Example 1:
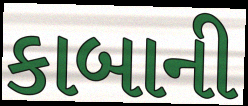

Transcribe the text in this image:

કાબાની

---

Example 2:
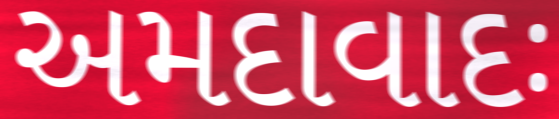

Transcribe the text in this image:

અમદાવાદઃ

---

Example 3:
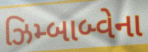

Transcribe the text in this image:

ઝિમ્બાબ્વેના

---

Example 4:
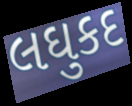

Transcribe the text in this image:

લઘુકદ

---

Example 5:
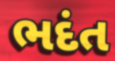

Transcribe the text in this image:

ભદંત